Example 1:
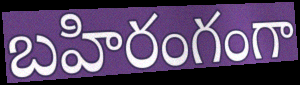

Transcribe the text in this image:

బహిరంగంగా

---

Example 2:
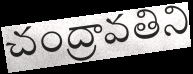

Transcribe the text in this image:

చంద్రావతిని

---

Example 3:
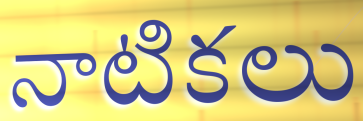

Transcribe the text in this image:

నాటికలు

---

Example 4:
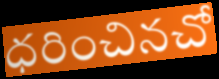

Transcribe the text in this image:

ధరించినచో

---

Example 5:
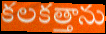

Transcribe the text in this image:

కలకత్తాను